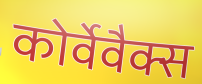
कोर्वेवैक्स